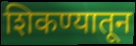
शिकण्यातून